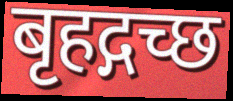
बृहद्गच्छ